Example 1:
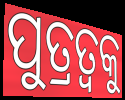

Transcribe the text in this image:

ପୁତ୍ରତ୍ଵକୁ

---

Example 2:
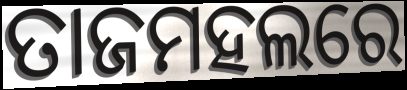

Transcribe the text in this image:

ତାଜମହଲରେ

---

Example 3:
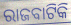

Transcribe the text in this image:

ରାଜବାଟିକି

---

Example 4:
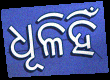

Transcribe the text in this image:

ଧୂଳିହିଁ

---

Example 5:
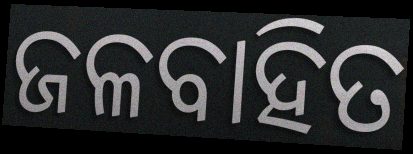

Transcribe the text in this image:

ଜଳବାହିତ